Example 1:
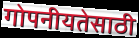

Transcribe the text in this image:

गोपनीयतेसाठी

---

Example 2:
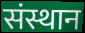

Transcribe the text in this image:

संस्थान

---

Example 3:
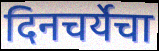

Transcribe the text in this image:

दिनचर्येचा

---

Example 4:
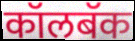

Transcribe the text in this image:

कॉलबॅक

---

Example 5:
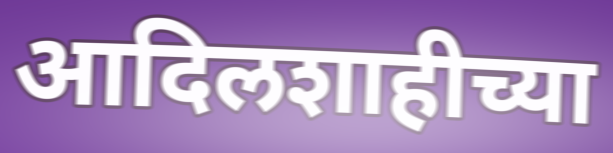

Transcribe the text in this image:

आदिलशाहीच्या